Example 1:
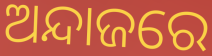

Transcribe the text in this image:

ଅନ୍ଦାଜରେ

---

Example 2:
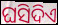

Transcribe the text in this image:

ଘସିଦିଏ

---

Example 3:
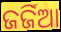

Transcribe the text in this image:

ଜର୍ଜିଆ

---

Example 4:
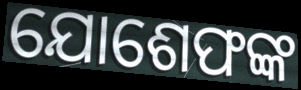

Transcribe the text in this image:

ଯୋଶେଫଙ୍କ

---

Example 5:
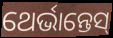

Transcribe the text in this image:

ଥେର୍ଭାନ୍ତେସ୍